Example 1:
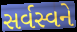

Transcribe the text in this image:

સર્વસ્વને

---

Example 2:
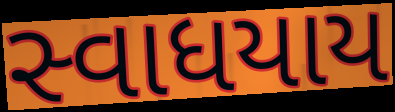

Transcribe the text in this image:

સ્વાધયાય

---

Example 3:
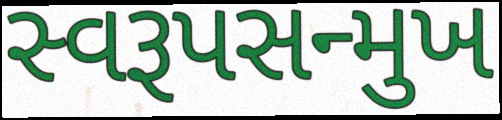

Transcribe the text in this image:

સ્વરૂપસન્મુખ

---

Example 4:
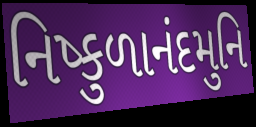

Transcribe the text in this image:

નિષ્કુળાનંદમુનિ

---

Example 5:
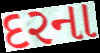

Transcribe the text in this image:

દરના